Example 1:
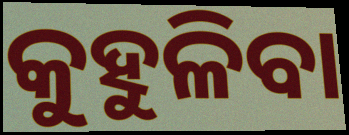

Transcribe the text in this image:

କୁହୁଳିବା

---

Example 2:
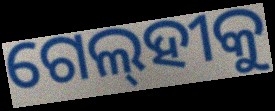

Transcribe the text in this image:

ଗେଲ୍‌ହୀକୁ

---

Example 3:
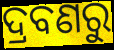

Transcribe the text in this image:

ଦ୍ରବଣରୁ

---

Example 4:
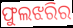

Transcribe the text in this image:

ଫୁଲଝରିର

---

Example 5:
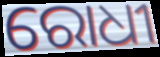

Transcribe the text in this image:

ରୋଧୀ